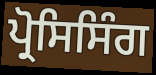
ਪ੍ਰੋਸਿਸਿੰਗ